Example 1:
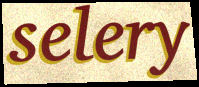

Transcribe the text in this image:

selery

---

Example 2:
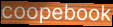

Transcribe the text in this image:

coopebook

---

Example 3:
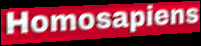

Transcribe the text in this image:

Homosapiens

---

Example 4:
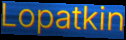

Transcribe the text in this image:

Lopatkin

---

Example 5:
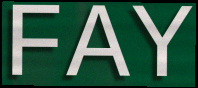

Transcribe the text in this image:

FAY